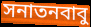
সনাতনবাবু